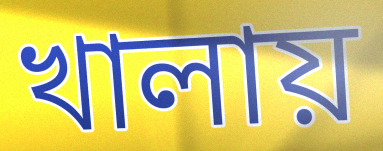
খালায়